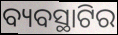
ବ୍ୟବସ୍ଥାଟିର